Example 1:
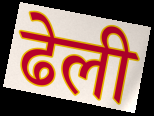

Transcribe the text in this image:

ढेली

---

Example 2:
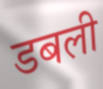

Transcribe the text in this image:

डबली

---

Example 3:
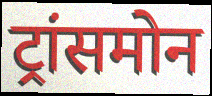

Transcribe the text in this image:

ट्रांसमोन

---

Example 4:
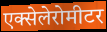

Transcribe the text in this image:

एक्सेलेरोमीटर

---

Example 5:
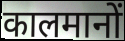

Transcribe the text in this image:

कालमानों